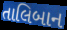
તાલિબાન